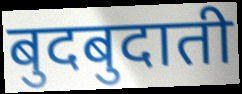
बुदबुदाती